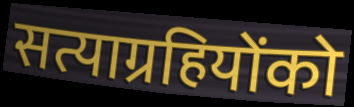
सत्याग्रहियोंको